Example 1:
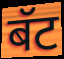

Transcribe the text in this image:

बॅट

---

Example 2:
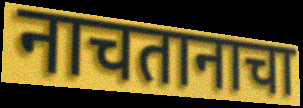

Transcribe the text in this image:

नाचतानाचा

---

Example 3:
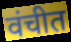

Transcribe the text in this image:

वंचीत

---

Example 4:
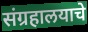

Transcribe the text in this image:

संग्रहालयाचे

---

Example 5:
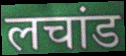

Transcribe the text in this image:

लचांड